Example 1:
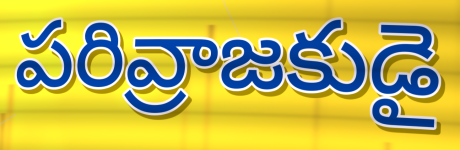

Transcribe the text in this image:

పరివ్రాజకుడై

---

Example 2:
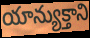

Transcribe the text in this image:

యాన్యుక్తాని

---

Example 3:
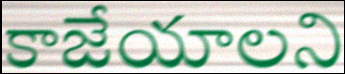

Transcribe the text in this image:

కాజేయాలని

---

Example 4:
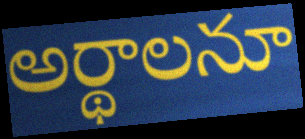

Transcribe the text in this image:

అర్థాలనూ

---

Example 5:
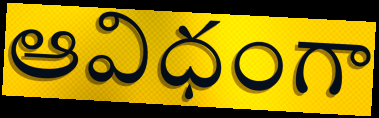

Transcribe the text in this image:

ఆవిధంగా